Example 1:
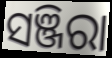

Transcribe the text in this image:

ସଞ୍ଜିରା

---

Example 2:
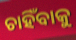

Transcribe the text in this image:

ଚାହିଁବାକୁ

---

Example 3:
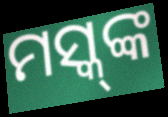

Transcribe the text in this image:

ମସ୍କ୍‌ଙ୍କ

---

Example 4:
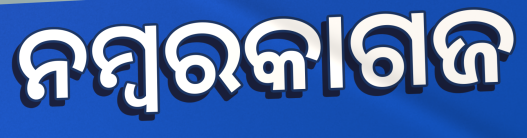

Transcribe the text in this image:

ନମ୍ବରକାଗଜ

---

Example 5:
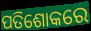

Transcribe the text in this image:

ପତିଶୋକରେ